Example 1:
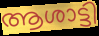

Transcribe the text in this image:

ആശാട്ടി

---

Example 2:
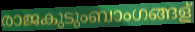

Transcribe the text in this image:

രാജകുടുംബാംഗങ്ങള്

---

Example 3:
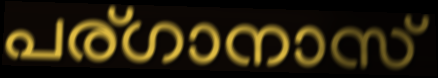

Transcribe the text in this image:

പര്ഗാനാസ്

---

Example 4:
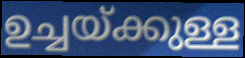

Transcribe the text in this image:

ഉച്ചയ്ക്കുള്ള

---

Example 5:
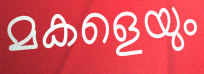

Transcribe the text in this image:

മകളെയും